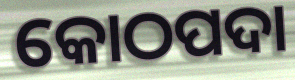
କୋଠପଦା